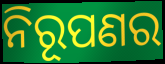
ନିରୂପଣର